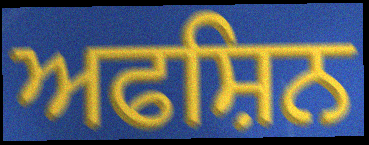
ਅਫਸ਼ਿਨ